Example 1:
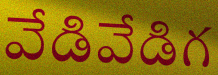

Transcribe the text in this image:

వేడివేడిగ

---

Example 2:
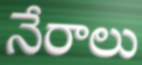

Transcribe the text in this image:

నేరాలు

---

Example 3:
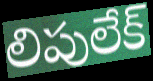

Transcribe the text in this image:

లిపులేక్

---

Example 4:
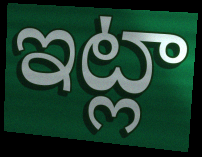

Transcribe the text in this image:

ఇట్లా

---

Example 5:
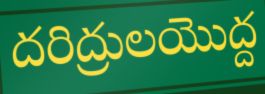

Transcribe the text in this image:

దరిద్రులయొద్ద